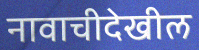
नावाचीदेखील